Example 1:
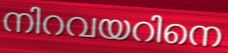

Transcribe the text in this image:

നിറവയറിനെ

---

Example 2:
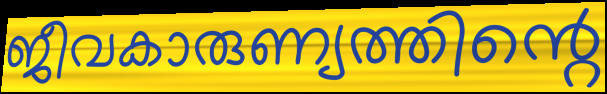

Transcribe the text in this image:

ജീവകാരുണ്യത്തിന്റെ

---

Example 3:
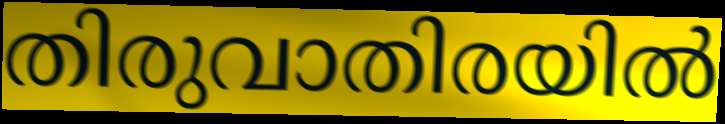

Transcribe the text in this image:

തിരുവാതിരയിൽ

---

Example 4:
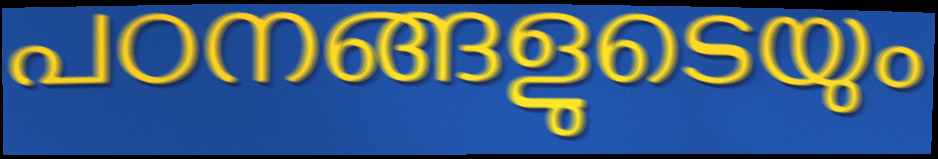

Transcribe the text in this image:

പഠനങ്ങളുടെയും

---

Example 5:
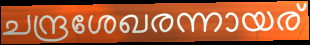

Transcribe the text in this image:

ചന്ദ്രശേഖരന്നായര്